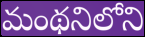
మంథనిలోని